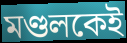
মণ্ডলকেই